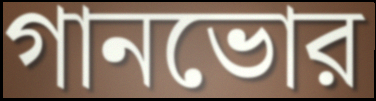
গানভোর